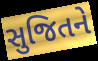
સુજિતને